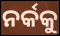
ନର୍କକୁ